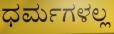
ಧರ್ಮಗಳಲ್ಲ